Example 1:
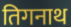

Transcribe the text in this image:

तिगनाथ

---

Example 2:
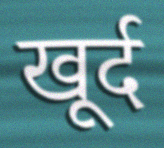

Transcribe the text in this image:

खूर्द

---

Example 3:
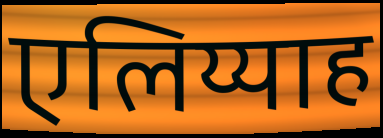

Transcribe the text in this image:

एलिय्याह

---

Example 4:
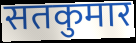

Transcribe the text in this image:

सतकुमार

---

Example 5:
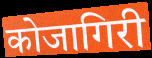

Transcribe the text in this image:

कोजागिरी